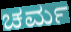
ಚರ್ಮ